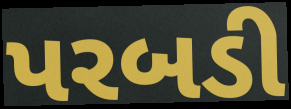
પરબડી